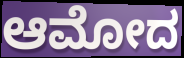
ಆಮೋದ